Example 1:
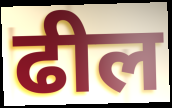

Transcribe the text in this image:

ढील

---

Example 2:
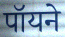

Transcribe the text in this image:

पॉयने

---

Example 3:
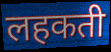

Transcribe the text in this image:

लहकती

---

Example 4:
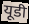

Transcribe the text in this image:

यूडी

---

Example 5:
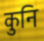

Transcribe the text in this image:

कुनि